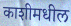
काशीमधील